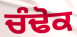
ਚੰਢੋਕ